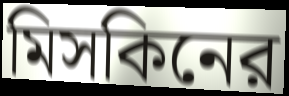
মিসকিনের